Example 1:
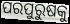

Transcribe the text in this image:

ପରପୁରୁଷକୁ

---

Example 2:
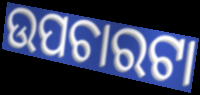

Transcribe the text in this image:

ଉପଚାରଟା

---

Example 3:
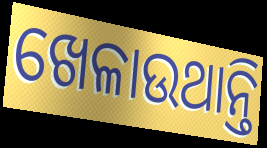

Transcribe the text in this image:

ଖେଳାଉଥାନ୍ତି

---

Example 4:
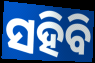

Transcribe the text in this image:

ସହିବି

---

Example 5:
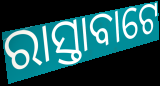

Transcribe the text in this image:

ରାସ୍ତାବାଟେ